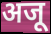
अजू